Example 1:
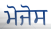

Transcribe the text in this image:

ਮੋਜੋਸ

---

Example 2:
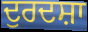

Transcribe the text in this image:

ਦੁਰਦਸ਼ਾ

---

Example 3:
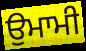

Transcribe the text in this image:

ਉਮਾਮੀ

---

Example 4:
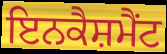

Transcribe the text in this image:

ਇਨਕੈਸ਼ਮੈਂਟ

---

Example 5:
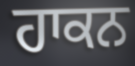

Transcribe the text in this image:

ਹਾਕਨ